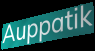
Auppatik